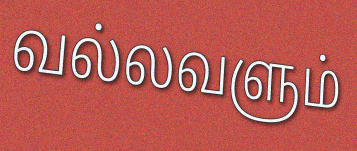
வல்லவளும்